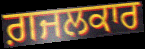
ਗ਼ਜਲਕਾਰ